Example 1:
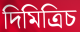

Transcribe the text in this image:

দিমিত্রিচ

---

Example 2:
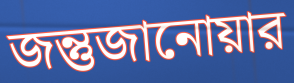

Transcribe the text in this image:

জন্তুজানোয়ার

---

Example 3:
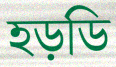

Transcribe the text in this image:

হড়ডি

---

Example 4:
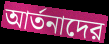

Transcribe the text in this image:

আর্তনাদের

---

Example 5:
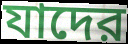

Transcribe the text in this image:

যাদের